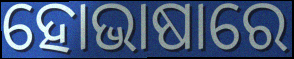
ହୋଭାଷାରେ